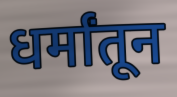
धर्मांतून